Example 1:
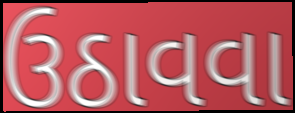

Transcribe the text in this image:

ઉઠાવવા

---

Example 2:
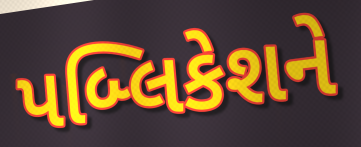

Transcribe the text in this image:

પબ્લિકેશને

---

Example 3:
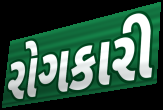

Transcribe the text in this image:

રોગકારી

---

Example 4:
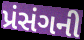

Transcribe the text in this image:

પ્રંસંગની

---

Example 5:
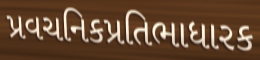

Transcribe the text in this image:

પ્રવચનિકપ્રતિભાધારક